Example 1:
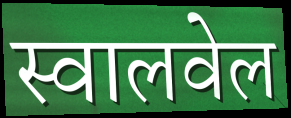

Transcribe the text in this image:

स्वालवेल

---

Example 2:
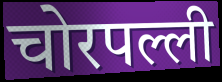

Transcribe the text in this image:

चोरपल्ली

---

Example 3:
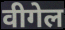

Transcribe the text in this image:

वीगेल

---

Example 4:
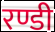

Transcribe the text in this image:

रण्डी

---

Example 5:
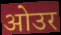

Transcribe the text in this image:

ओउर